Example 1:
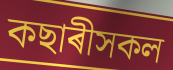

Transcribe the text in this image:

কছাৰীসকল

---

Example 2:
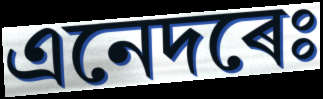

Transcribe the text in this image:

এনেদৰেঃ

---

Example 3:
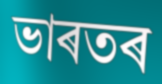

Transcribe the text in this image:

ভাৰতৰ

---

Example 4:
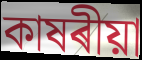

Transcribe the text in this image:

কাষৰীয়া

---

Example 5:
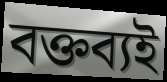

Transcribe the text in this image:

বক্তব্যই